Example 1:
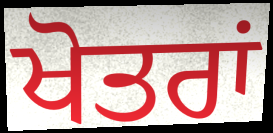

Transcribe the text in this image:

ਖੋਤਰਾਂ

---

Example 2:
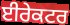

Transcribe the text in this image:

ਈਰੇਕਟਰ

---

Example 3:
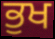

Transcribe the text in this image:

ਭੁਖ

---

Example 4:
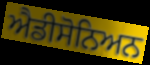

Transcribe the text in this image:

ਐਡੀਸੋਨਿਅਨ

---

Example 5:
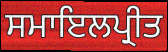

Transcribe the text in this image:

ਸਮਾਇਲਪ੍ਰੀਤ